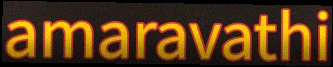
amaravathi